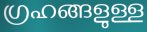
ഗ്രഹങ്ങളുള്ള